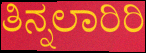
ತಿನ್ನಲಾರಿರಿ